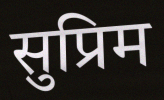
सुप्रिम